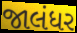
જાલંધર